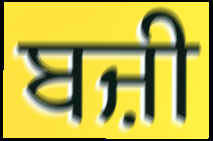
ਬਜ਼ੀ